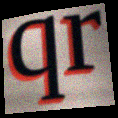
qr